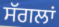
ਸੱਗਲਾਂ